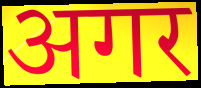
अगर